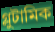
গ্লুটামিক